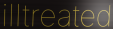
illtreated